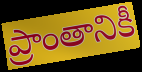
ప్రాంతానికీ